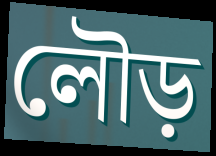
লৌড়